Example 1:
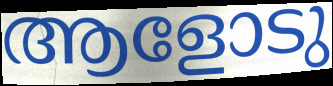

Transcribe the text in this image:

ആളോടു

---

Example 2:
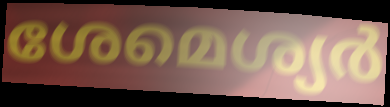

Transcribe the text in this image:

ശേമെശ്യർ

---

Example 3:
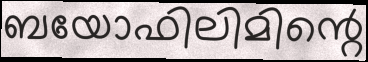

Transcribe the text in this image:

ബയോഫിലിമിന്റെ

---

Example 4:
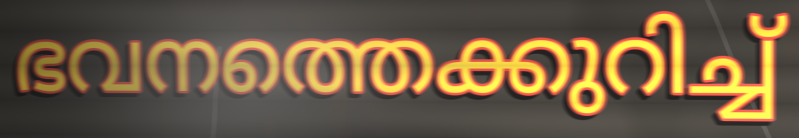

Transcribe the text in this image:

ഭവനത്തെക്കുറിച്ച്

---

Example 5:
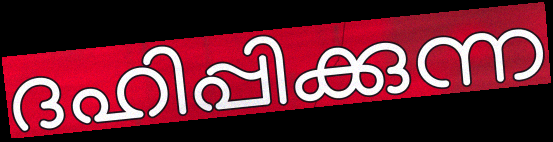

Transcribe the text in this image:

ദഹിപ്പിക്കുന്ന